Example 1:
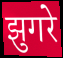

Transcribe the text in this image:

झुगरे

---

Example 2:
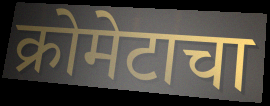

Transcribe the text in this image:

क्रोमेटाचा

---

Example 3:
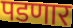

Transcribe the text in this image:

पडणार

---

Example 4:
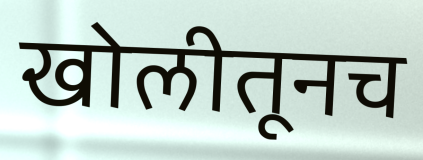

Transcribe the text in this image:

खोलीतूनच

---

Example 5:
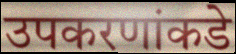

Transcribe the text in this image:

उपकरणांकडे